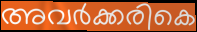
അവർക്കരികെ